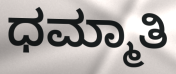
ಧಮ್ಮಾತಿ